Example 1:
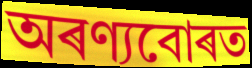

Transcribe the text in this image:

অৰণ্যবোৰত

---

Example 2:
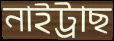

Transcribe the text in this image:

নাইট্ৰাছ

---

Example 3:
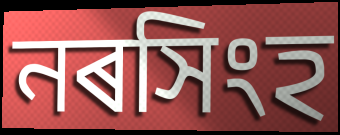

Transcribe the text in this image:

নৰসিংহ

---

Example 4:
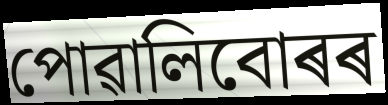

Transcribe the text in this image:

পোৱালিবোৰৰ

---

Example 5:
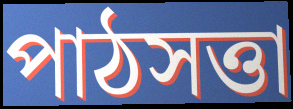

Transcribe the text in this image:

পাঠসত্তা